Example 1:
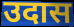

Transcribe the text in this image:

उदास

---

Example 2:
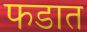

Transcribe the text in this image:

फडात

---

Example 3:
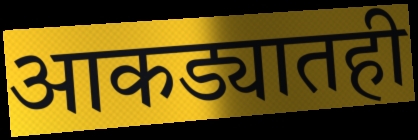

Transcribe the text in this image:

आकड्यातही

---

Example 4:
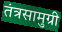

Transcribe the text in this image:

तंत्रसामुग्री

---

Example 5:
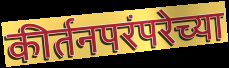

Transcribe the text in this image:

कीर्तनपरंपरेच्या